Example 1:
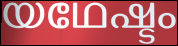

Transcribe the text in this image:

യഥേഷ്ടം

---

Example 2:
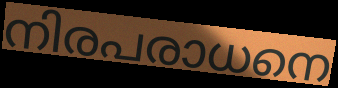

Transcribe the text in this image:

നിരപരാധനെ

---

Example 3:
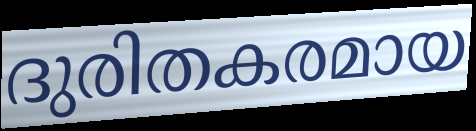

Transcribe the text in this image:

ദുരിതകരമായ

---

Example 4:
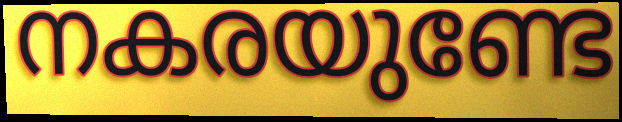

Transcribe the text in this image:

നകരയുണ്ടേ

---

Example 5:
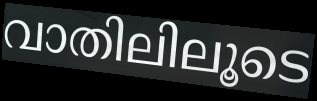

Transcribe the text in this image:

വാതിലിലൂടെ